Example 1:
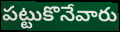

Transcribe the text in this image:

పట్టుకొనేవారు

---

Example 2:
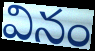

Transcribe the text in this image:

వినం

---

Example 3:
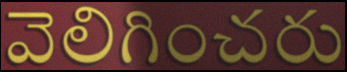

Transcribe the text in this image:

వెలిగించరు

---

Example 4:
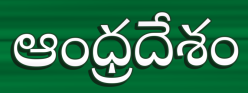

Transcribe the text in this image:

ఆంధ్రదేశం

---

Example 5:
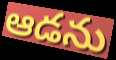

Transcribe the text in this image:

ఆడను